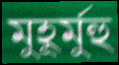
মুহূর্মুহু